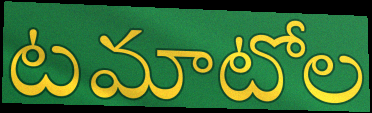
టమాటోల